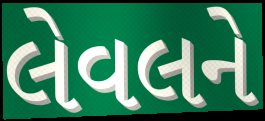
લેવલને